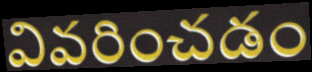
వివరించడం